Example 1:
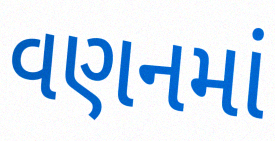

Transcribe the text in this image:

વણનમાં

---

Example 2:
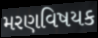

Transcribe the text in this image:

મરણવિષયક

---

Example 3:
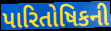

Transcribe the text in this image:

પારિતોષિકની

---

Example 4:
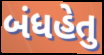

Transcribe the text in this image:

બંધહેતુ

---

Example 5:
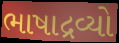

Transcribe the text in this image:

ભાષાદ્રવ્યો